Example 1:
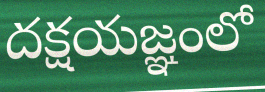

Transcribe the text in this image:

దక్షయజ్ఞంలో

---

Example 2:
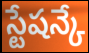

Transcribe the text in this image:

స్టేషన్కే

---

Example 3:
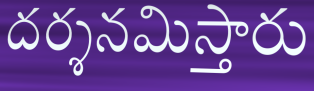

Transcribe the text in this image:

దర్శనమిస్తారు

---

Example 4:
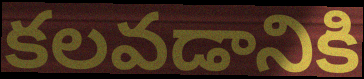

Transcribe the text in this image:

కలవడానికి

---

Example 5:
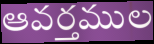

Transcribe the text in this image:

ఆవర్తముల